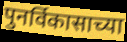
पुनर्विकासाच्या